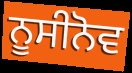
ਨੂਸੀਨੋਵ